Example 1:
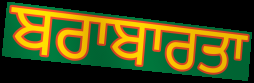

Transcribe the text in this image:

ਬਰਾਬਾਰਤਾ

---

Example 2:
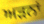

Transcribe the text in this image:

ਅੜਨਾਂ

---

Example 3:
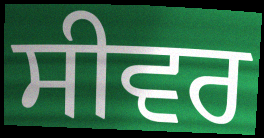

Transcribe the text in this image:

ਸੀਵਰ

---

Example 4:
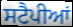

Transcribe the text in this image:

ਸਟੈਪੀਆਂ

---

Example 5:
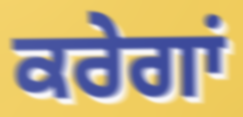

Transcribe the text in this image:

ਕਰੇਗਾਂ